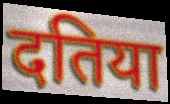
दतिया